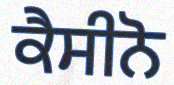
ਕੈਸੀਨੋ